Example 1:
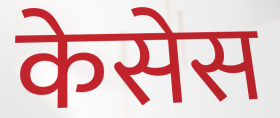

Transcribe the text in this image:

केसेस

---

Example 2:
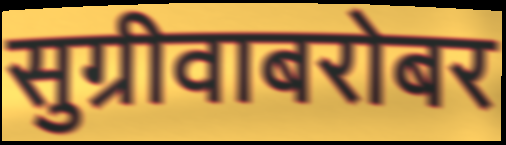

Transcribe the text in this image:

सुग्रीवाबरोबर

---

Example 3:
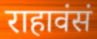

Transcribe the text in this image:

राहावंसं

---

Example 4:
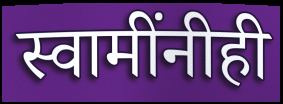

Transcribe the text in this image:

स्वामींनीही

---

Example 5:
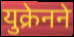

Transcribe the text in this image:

युक्रेनने